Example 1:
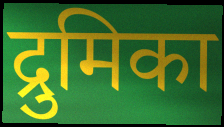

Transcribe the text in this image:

द्रुमिका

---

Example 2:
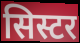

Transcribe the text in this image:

सिस्टर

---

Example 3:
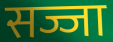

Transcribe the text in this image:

सज्जा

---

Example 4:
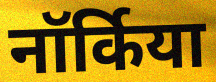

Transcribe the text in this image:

नॉर्किया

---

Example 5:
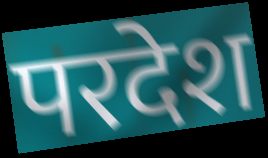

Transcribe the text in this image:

परदेश